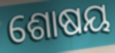
ଶୋଷୟ